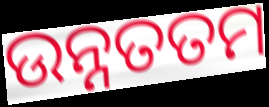
ଉନ୍ନତତମ